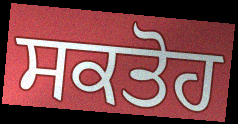
ਸਕਤੋਹ